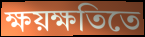
ক্ষয়ক্ষতিতে